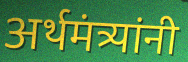
अर्थमंत्र्यांनी